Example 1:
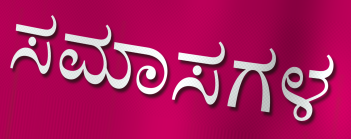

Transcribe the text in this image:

ಸಮಾಸಗಳ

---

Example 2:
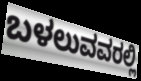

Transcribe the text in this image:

ಬಳಲುವವರಲ್ಲಿ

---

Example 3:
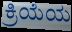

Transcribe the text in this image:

ಕ್ರಿಯೆಯ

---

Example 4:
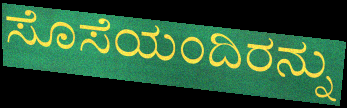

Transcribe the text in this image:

ಸೊಸೆಯಂದಿರನ್ನು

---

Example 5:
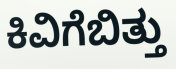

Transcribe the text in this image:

ಕಿವಿಗೆಬಿತ್ತು